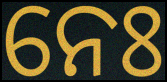
ନେଃ